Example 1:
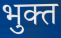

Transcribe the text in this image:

भुक्त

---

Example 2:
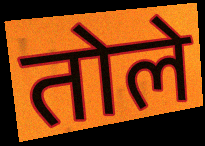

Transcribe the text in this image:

तोले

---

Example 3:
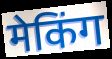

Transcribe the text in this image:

मेकिंग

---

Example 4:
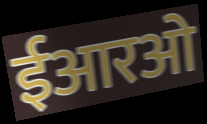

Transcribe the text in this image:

ईआरओ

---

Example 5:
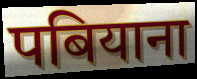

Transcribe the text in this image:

पबियाना